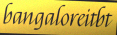
bangaloreitbt